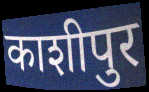
काशीपुर